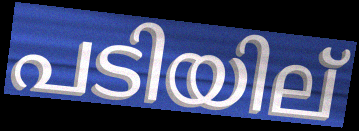
പടിയില്